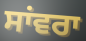
ਸਾਂਵਰਾ